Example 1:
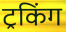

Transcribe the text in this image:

ट्रकिंग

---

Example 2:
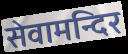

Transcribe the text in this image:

सेवामन्दिर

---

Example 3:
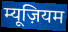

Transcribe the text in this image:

म्यूज़ियम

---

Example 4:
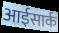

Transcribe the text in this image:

आईसार्क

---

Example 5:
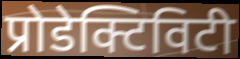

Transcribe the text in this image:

प्रोडेक्टिविटी